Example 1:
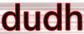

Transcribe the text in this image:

dudh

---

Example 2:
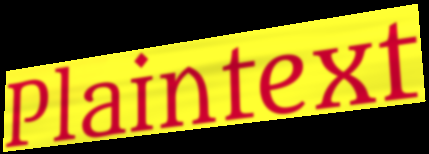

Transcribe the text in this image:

Plaintext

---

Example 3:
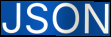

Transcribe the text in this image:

JSON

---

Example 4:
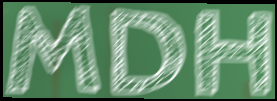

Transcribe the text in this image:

MDH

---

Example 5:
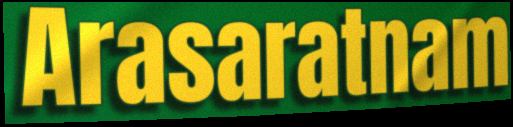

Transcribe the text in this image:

Arasaratnam